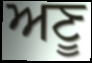
ਅਣੂ